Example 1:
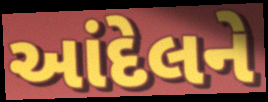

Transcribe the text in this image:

આંદેલને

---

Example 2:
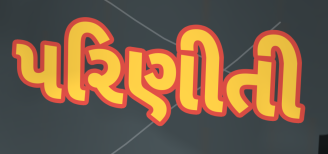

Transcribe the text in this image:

પરિણીતી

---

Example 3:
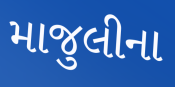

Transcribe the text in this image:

માજુલીના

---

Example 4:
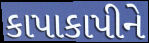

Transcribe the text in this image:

કાપાકાપીને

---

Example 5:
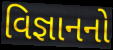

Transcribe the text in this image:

વિજ્ઞાનનો